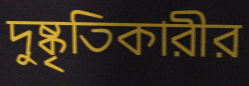
দুষ্কৃতিকারীর